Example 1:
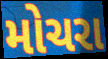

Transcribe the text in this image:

મોચરા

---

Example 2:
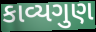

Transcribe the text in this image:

કાવ્યગુણ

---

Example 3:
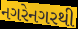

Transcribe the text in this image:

નગરેનગરથી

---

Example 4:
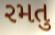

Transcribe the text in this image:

રમતુ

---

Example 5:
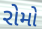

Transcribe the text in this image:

રોમો